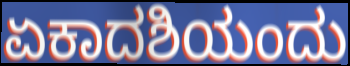
ಏಕಾದಶಿಯಂದು